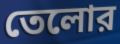
তেলোর